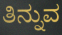
ತಿನ್ನುವ